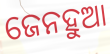
ଜେନହୁଆ